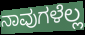
ನಾವುಗಳೆಲ್ಲ